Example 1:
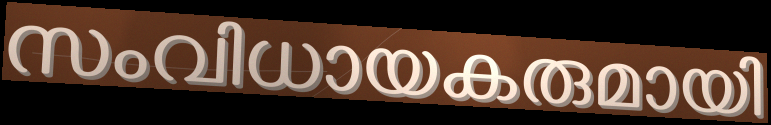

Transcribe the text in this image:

സംവിധായകരുമായി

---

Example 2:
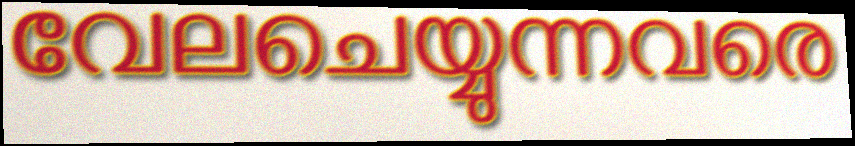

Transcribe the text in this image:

വേലചെയ്യുന്നവരെ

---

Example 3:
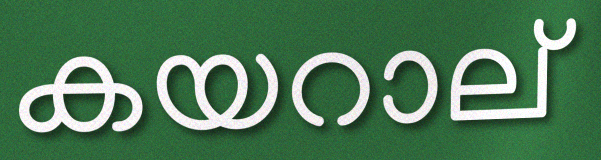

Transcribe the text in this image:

കയറാല്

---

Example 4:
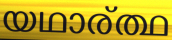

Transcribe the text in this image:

യഥാര്ത്ഥ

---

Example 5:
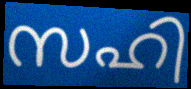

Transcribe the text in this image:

സഹി